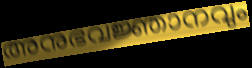
അനുഭവജ്ഞാനവും